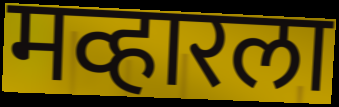
मव्हारला